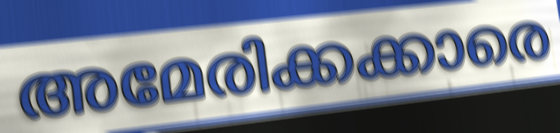
അമേരിക്കക്കാരെ